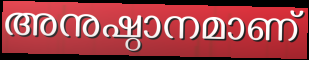
അനുഷ്ഠാനമാണ്